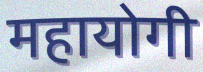
महायोगी